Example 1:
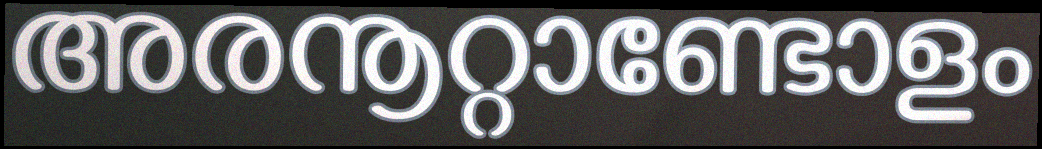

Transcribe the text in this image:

അരനൂറ്റാണ്ടോളം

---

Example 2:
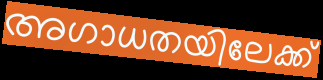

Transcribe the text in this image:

അഗാധതയിലേക്ക്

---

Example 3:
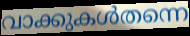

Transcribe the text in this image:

വാക്കുകൾതന്നെ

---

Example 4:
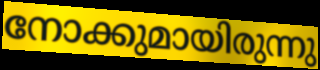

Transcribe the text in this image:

നോക്കുമായിരുന്നു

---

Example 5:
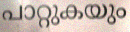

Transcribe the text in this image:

പാറ്റുകയും